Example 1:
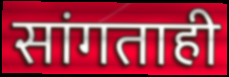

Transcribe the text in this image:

सांगताही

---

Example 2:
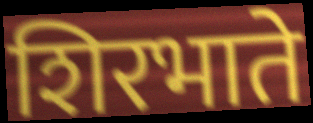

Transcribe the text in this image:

शिरभाते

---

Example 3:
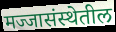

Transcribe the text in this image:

मज्जासंस्थेतील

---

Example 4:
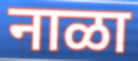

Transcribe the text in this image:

नाळा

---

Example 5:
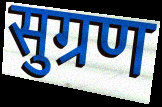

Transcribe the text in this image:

सुग्रण